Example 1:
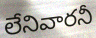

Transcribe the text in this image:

లేనివారనీ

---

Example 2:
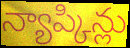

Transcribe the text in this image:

న్యాప్కిన్లు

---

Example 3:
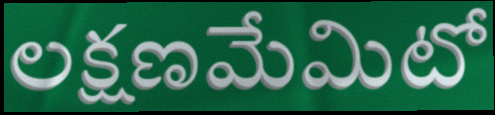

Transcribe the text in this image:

లక్షణమేమిటో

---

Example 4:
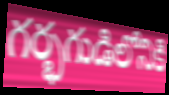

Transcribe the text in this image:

గర్భగుడిలోనికి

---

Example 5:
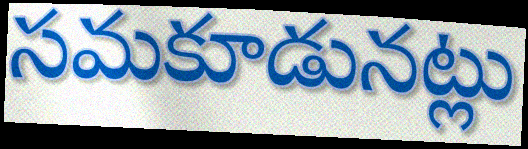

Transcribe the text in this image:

సమకూడునట్లు